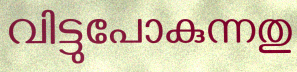
വിട്ടുപോകുന്നതു